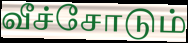
வீச்சோடும்